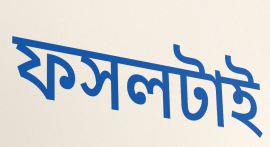
ফসলটাই